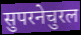
सुपरनेचुरल